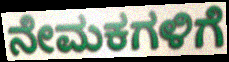
ನೇಮಕಗಳಿಗೆ